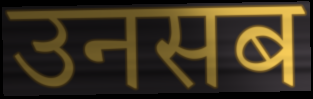
उनसब